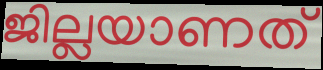
ജില്ലയാണത്